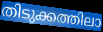
തിടുക്കത്തിലാ